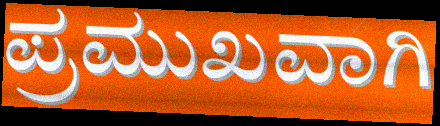
ಪ್ರಮುಖವಾಗಿ